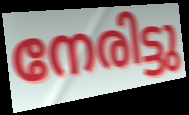
നേരിട്ടു